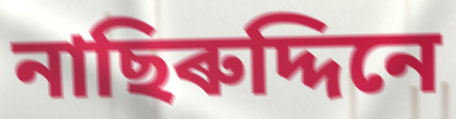
নাছিৰুদ্দিনে